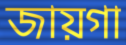
জায়গা